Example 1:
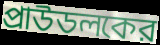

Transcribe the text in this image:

প্রাউডলকের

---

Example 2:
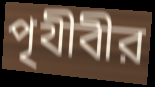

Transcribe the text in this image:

পৃথীবীর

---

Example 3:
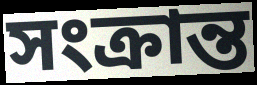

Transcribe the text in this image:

সংক্রান্ত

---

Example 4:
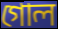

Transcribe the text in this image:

গোল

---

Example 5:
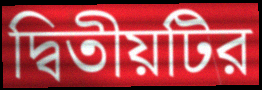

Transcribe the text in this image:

দ্বিতীয়টির